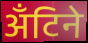
अँटिने